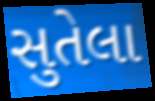
સુતેલા